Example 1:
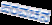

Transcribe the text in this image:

ಪರವಚನ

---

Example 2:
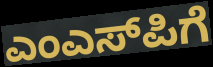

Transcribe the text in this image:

ಎಂಎಸ್‌ಪಿಗೆ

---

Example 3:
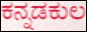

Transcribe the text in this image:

ಕನ್ನಡಕುಲ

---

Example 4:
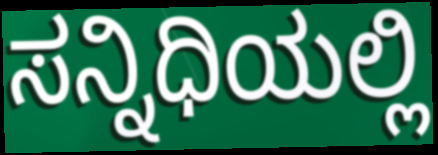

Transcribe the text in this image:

ಸನ್ನಿಧಿಯಲ್ಲಿ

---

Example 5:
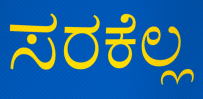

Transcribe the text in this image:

ಸರಕೆಲ್ಲ